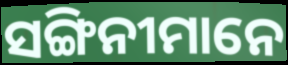
ସଙ୍ଗିନୀମାନେ